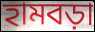
হামবড়া